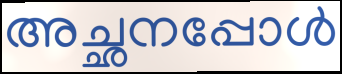
അച്ഛനപ്പോൾ